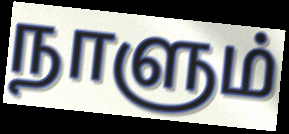
நாளும்